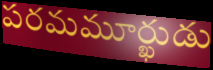
పరమమూర్ఖుడు